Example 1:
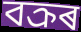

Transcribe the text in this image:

বক্ৰৰ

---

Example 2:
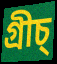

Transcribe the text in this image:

গ্ৰীচ্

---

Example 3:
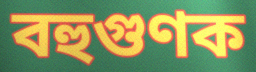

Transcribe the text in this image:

বহুগুণক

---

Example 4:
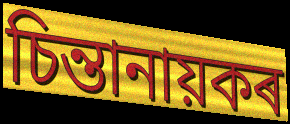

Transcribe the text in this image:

চিন্তানায়কৰ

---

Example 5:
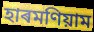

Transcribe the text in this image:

হাৰমণিয়াম